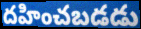
దహించబడడు